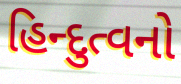
હિન્દુત્વનો